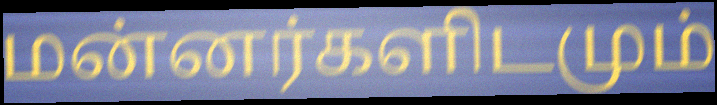
மன்னர்களிடமும்